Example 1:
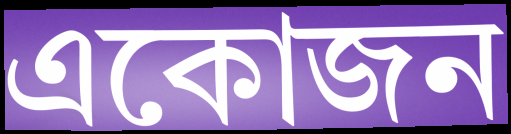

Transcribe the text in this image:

একোজন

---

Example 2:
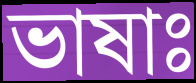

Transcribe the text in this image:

ভাষাঃ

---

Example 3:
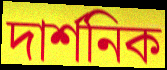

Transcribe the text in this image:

দাৰ্শনিক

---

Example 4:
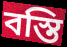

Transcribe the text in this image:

বস্তি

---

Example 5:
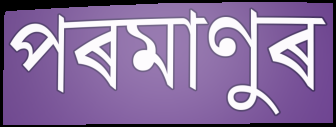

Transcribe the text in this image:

পৰমাণুৰ